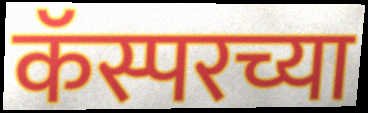
कॅस्परच्या